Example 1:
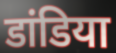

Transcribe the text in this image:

डांडिया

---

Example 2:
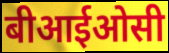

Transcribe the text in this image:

बीआईओसी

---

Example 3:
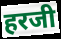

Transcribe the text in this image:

हरजी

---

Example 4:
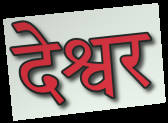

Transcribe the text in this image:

देश्वर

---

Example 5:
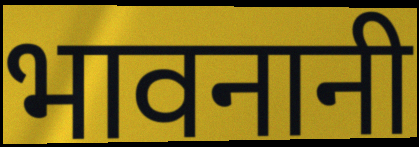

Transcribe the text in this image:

भावनानी